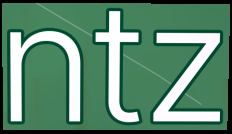
ntz